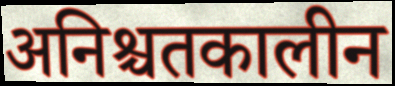
अनिश्चतकालीन